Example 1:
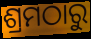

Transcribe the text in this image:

ଶ୍ରମଠାରୁ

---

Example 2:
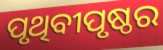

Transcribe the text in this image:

ପୃଥିବୀପୃଷ୍ଠର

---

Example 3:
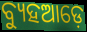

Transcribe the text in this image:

ବ୍ୟୁହଆଡ଼େ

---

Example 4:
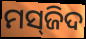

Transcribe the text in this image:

ମସ୍‌ଜିଦ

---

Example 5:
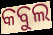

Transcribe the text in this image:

କବୁଲ